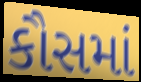
કૌસમાં